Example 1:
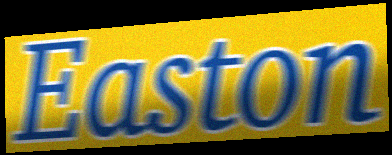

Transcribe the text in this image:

Easton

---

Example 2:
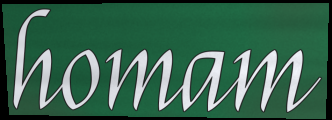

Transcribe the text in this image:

homam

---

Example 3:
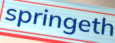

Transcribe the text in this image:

springeth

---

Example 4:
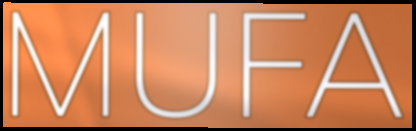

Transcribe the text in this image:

MUFA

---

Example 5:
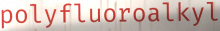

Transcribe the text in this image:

polyfluoroalkyl